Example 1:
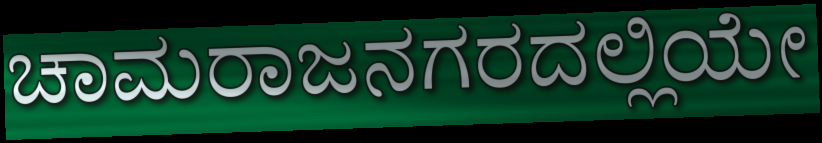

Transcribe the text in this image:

ಚಾಮರಾಜನಗರದಲ್ಲಿಯೇ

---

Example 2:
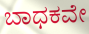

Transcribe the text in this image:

ಬಾಧಕವೇ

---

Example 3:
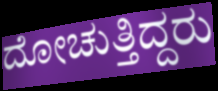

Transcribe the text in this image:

ದೋಚುತ್ತಿದ್ದರು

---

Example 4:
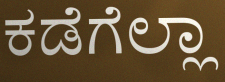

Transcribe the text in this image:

ಕಡೆಗೆಲ್ಲಾ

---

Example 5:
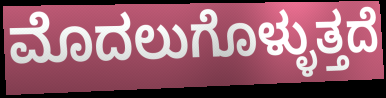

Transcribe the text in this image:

ಮೊದಲುಗೊಳ್ಳುತ್ತದೆ